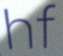
hf